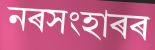
নৰসংহাৰৰ